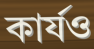
কাৰ্যও